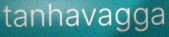
tanhavagga